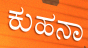
ಕುಹನಾ